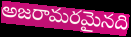
అజరామరమైనది